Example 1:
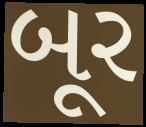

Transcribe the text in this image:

બૂર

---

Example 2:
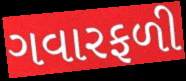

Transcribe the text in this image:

ગવારફળી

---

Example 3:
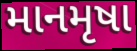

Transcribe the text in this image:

માનમૃષા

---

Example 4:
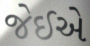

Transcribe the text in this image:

જેઈએ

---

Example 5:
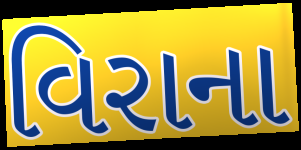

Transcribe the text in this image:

વિરાના